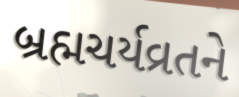
બ્રહ્મચર્યવ્રતને